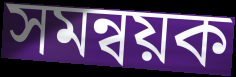
সমন্বয়ক